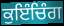
ਕੁਇੰਚਿੰਗ